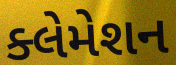
ક્લેમેશન